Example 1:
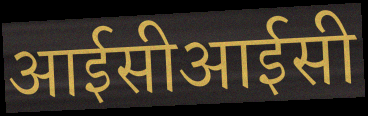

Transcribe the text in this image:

आईसीआईसी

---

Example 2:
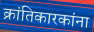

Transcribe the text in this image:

क्रांतिकारकांना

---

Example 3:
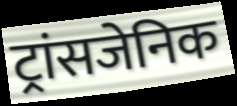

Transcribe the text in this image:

ट्रांसजेनिक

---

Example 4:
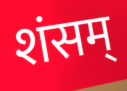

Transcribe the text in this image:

शंसम्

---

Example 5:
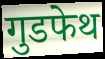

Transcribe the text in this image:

गुडफेथ